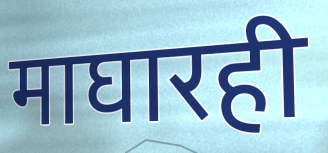
माघारही